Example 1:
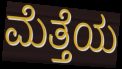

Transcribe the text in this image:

ಮೆತ್ತೆಯ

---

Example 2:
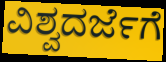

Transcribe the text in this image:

ವಿಶ್ವದರ್ಜೆಗೆ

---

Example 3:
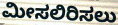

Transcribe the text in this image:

ಮೀಸಲಿರಿಸಲು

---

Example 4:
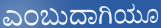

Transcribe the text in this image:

ಎಂಬುದಾಗಿಯೂ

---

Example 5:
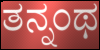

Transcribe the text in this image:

ತನ್ನಂಥ